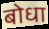
बोधा